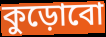
কুড়োবো